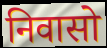
निवासो